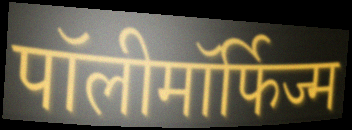
पॉलीमॉर्फिज्म